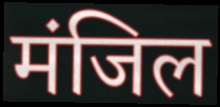
मंजिल